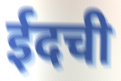
ईदची